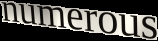
numerous